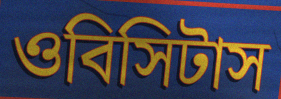
ওবিসিটাস